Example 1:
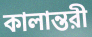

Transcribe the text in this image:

কালান্তরী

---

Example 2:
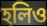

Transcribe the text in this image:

হলিও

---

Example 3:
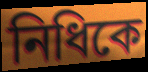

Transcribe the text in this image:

নিধিকে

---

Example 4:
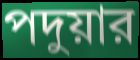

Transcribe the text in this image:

পদুয়ার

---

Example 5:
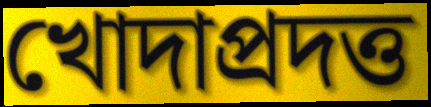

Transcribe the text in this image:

খোদাপ্রদত্ত